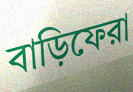
বাড়িফেরা